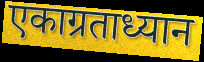
एकाग्रताध्यान